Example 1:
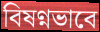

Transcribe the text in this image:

বিষণ্নভাবে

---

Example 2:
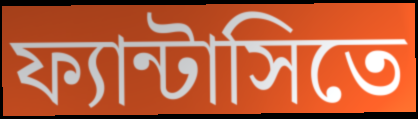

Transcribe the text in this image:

ফ্যান্টাসিতে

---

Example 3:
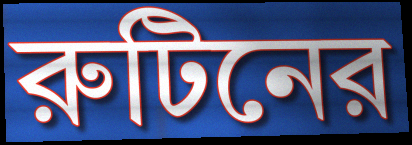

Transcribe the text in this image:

রুটিনের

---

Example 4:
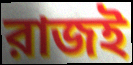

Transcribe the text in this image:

রাজই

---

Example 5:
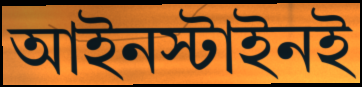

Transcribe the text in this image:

আইনস্টাইনই